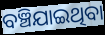
ବଞ୍ଚିଯାଇଥିବା